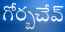
గోర్బచేవ్